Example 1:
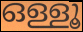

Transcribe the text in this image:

ഒള്ളൂ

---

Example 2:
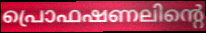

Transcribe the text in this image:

പ്രൊഫഷണലിന്റെ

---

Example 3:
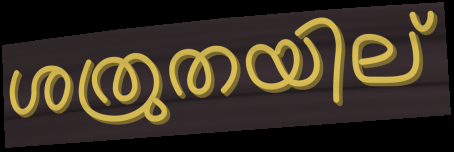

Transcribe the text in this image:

ശത്രുതയില്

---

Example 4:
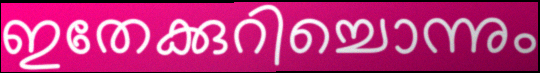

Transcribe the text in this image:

ഇതേക്കുറിച്ചൊന്നും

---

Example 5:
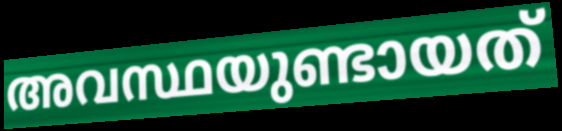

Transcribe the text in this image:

അവസ്ഥയുണ്ടായത്